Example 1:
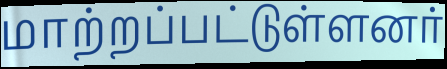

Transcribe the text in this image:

மாற்றப்பட்டுள்ளனர்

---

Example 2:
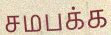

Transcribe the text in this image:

சமபக்க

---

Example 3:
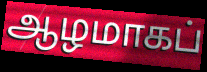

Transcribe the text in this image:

ஆழமாகப்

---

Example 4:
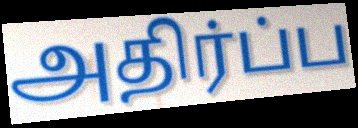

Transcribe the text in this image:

அதிர்ப்ப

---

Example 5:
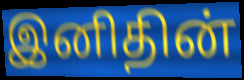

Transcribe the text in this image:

இனிதின்